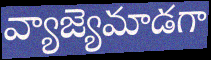
వ్యాజ్యెమాడగా